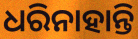
ଧରିନାହାନ୍ତି